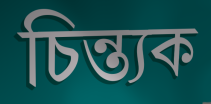
চিন্ত্যক